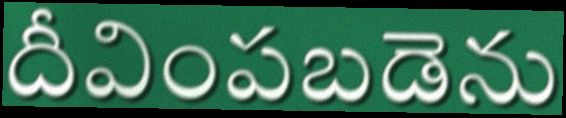
దీవింపబడెను